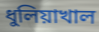
ধুলিয়াখাল